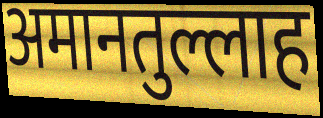
अमानतुल्लाह